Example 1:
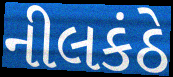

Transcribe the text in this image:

નીલકંઠે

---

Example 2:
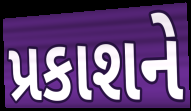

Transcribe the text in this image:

પ્રકાશને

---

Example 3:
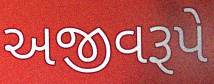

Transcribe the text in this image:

અજીવરૂપે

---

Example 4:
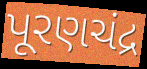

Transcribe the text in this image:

પૂરણચંદ્ર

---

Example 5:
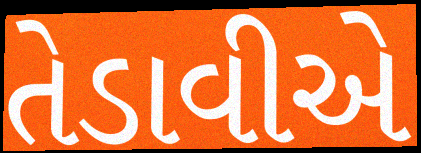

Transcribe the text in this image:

તેડાવીએ